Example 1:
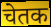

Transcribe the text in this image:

चेतक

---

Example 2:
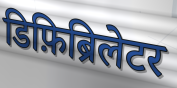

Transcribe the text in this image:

डिफ़िब्रिलेटर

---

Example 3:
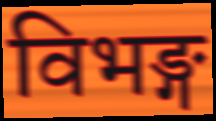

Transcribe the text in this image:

विभङ्ग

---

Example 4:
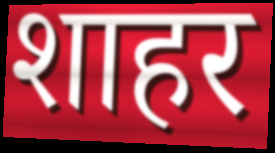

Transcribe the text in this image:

शाहर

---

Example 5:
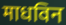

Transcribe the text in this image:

माधविन